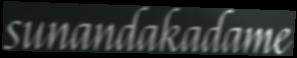
sunandakadame